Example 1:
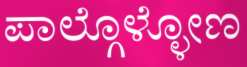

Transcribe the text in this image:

ಪಾಲ್ಗೊಳ್ಳೋಣ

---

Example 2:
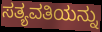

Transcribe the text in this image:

ಸತ್ಯವತಿಯನ್ನು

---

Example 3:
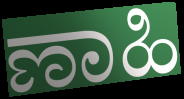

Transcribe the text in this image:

ಣಾಹಿ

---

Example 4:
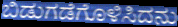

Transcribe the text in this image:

ಬಿಡುಗಡೆಗೊಳಿಸಿದನು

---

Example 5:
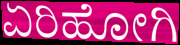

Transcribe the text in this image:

ಏರಿಹೋಗಿ